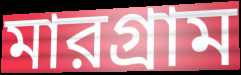
মারগ্রাম